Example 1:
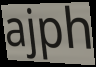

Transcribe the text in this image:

ajph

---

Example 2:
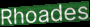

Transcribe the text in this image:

Rhoades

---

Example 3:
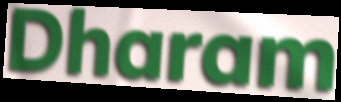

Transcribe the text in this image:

Dharam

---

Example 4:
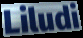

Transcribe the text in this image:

Liludi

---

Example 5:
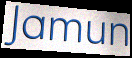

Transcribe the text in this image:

Jamun